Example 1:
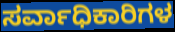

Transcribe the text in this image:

ಸರ್ವಾಧಿಕಾರಿಗಳ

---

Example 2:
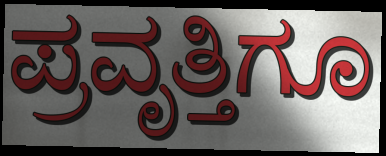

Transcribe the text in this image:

ಪ್ರವೃತ್ತಿಗೂ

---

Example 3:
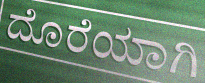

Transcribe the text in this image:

ದೊರೆಯಾಗಿ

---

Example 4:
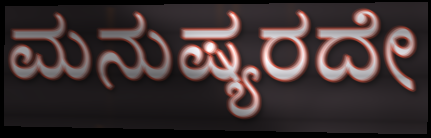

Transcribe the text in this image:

ಮನುಷ್ಯರದೇ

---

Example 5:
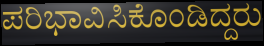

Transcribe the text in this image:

ಪರಿಭಾವಿಸಿಕೊಂಡಿದ್ದರು